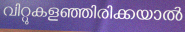
വിറ്റുകളഞ്ഞിരിക്കയാൽ